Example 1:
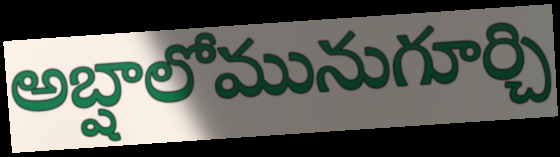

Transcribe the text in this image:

అబ్షాలోమునుగూర్చి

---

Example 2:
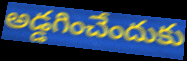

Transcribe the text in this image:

అడ్డగించేందుకు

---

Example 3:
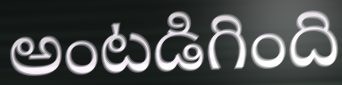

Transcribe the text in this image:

అంటడిగింది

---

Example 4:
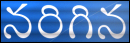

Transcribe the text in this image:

నరిగిన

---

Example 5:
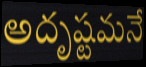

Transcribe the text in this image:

అదృష్టమనే